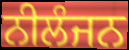
ਨੀਲੰਜਨ